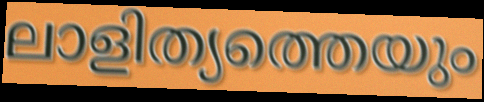
ലാളിത്യത്തെയും